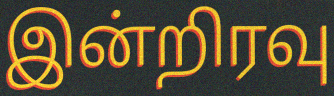
இன்றிரவு